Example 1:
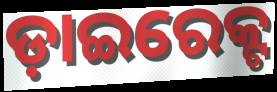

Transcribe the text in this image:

ଡ଼ାଇରେକ୍ଟ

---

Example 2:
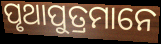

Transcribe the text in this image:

ପୃଥାପୁତ୍ରମାନେ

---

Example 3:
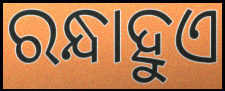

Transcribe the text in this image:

ରନ୍ଧାହୁଏ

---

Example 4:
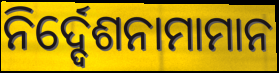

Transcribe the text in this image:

ନିର୍ଦ୍ଦେଶନାମାମାନ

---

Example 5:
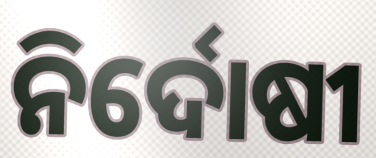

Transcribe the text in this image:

ନିର୍ଦୋଷୀ